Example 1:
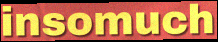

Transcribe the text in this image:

insomuch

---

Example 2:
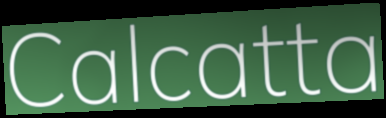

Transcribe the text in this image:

Calcatta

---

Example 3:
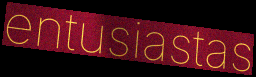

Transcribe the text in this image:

entusiastas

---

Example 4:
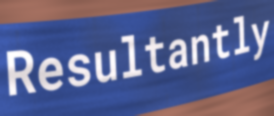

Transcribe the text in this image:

Resultantly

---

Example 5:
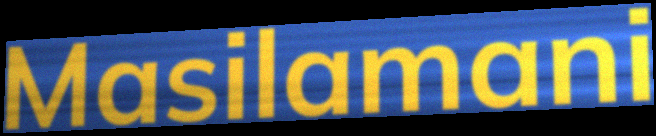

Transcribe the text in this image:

Masilamani